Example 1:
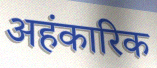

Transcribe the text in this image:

अहंकारिक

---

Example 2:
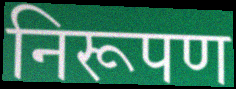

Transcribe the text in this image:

निरूपण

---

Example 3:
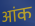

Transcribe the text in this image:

आंक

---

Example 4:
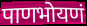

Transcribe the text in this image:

पाणभोयणं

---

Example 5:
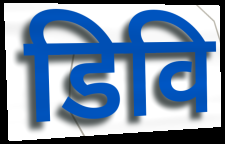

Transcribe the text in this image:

डिवि